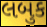
લબુક